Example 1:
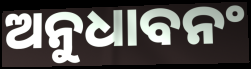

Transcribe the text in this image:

ଅନୁଧାବନଂ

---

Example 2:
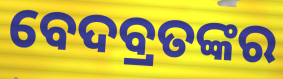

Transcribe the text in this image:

ବେଦବ୍ରତଙ୍କର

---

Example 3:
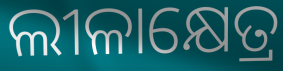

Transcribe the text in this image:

ଲୀଳାକ୍ଷେତ୍ର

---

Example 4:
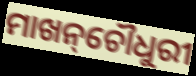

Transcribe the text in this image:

ମାଖନ୍‌ଚୌଧୁରୀ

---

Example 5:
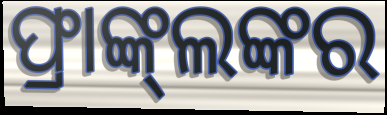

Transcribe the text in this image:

ଫ୍ରାଙ୍କ୍‌ଲଙ୍କର